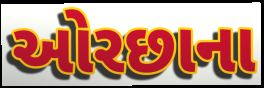
ઓરછાના